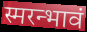
स्मरन्भावं